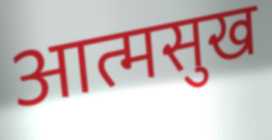
आत्मसुख